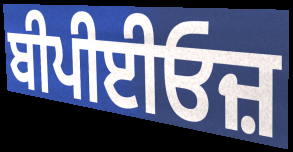
ਬੀਪੀਈਓਜ਼